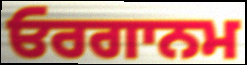
ਓਰਗਾਨਮ